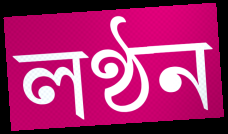
লণ্ঠন